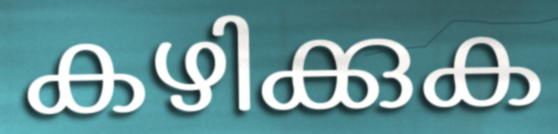
കഴിക്കുക